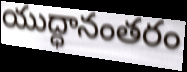
యుద్ధానంతరం